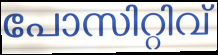
പോസിറ്റിവ്